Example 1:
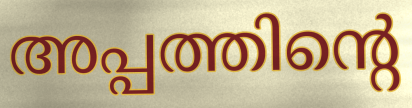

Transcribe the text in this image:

അപ്പത്തിന്റെ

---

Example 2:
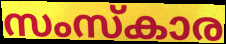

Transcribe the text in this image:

സംസ്കാര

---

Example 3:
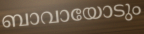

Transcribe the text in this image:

ബാവായോടും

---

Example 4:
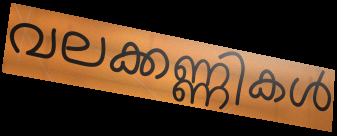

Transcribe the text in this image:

വലക്കണ്ണികൾ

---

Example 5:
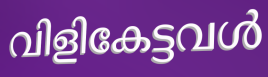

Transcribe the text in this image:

വിളികേട്ടവൾ